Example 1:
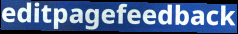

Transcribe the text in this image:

editpagefeedback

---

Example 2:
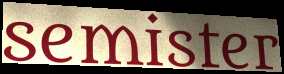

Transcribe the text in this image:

semister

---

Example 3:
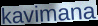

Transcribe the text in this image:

kavimana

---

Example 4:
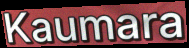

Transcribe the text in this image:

Kaumara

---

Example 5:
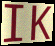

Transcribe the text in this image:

IK